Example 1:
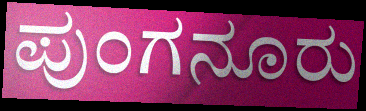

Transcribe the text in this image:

ಪುಂಗನೂರು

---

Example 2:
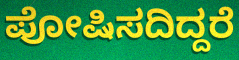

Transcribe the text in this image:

ಪೋಷಿಸದಿದ್ದರೆ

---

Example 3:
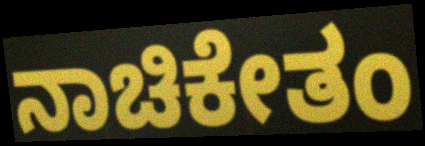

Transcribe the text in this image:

ನಾಚಿಕೇತಂ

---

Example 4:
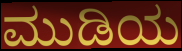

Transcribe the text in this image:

ಮುಡಿಯ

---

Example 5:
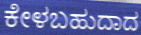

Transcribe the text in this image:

ಕೇಳಬಹುದಾದ